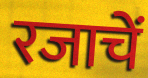
रजाचें